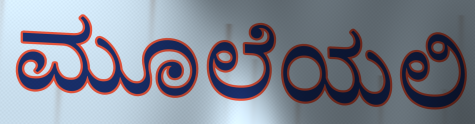
ಮೂಲೆಯಲಿ